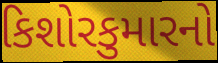
કિશોરકુમારનો